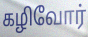
கழிவோர்